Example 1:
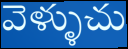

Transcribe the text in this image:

వెళ్ళుచు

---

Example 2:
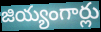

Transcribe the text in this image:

జియ్యంగార్లు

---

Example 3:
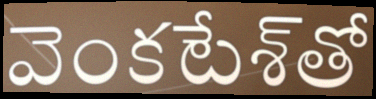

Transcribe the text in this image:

వెంకటేశ్‌తో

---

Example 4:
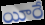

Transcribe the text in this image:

యీరే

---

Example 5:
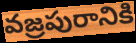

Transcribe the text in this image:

వజ్రపురానికి